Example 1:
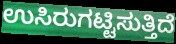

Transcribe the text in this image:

ಉಸಿರುಗಟ್ಟಿಸುತ್ತಿದೆ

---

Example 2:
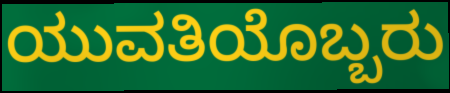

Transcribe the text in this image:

ಯುವತಿಯೊಬ್ಬರು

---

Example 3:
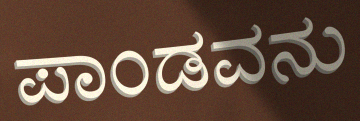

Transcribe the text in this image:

ಪಾಂಡವನು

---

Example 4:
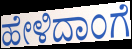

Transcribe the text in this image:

ಹೇಳಿದಾಂಗೆ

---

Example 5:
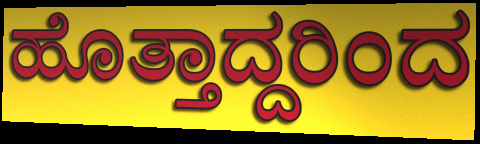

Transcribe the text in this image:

ಹೊತ್ತಾದ್ದರಿಂದ